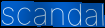
scandal